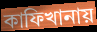
কাফিখানায়